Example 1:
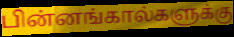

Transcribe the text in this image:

பின்னங்கால்களுக்கு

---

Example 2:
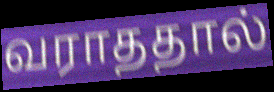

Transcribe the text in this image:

வராததால்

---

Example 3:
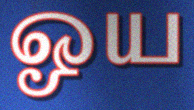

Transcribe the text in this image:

ஓய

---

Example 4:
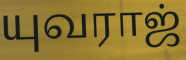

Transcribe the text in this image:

யுவராஜ்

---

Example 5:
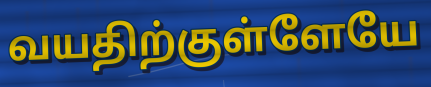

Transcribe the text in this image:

வயதிற்குள்ளேயே